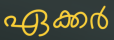
ഏക്കർ